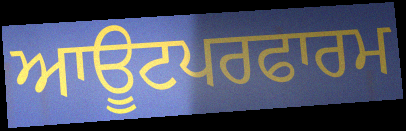
ਆਊਟਪਰਫਾਰਮ